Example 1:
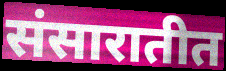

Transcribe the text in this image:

संसारातीत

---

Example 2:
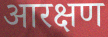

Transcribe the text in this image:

आरक्षण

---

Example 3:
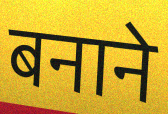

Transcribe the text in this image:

बनाने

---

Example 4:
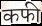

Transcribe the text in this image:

कफी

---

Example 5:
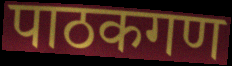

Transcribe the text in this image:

पाठकगण